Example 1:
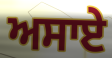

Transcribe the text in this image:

ਅਸਾਏ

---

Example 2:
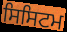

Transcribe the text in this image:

ਸਿਸਿਟਮ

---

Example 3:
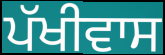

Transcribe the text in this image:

ਪੱਖੀਵਾਸ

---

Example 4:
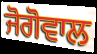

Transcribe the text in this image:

ਜੋਗੋਵਾਲ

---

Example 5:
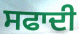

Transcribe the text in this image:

ਸਫਾਦੀ